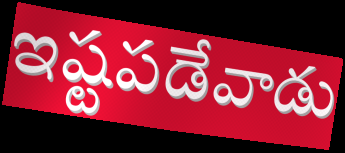
ఇష్టపడేవాడు